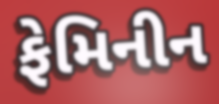
ફેમિનીન